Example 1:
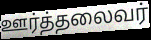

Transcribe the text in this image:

ஊர்த்தலைவர்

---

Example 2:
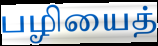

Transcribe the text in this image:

பழியைத்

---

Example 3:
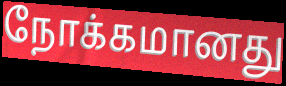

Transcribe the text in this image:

நோக்கமானது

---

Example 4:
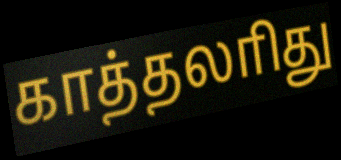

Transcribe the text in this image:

காத்தலரிது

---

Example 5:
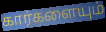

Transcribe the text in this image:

கார்களையும்